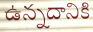
ఉన్నదానికి